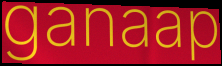
ganaap